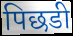
पिछडी